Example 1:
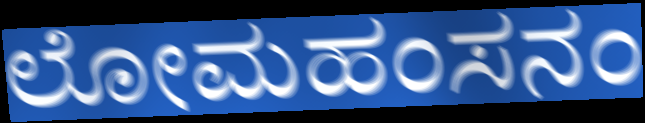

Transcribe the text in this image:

ಲೋಮಹಂಸನಂ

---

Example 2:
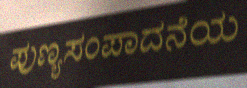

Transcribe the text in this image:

ಪುಣ್ಯಸಂಪಾದನೆಯ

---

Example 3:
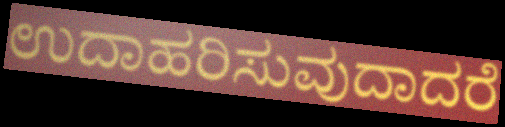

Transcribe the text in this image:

ಉದಾಹರಿಸುವುದಾದರೆ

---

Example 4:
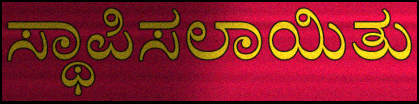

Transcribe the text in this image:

ಸ್ಥಾಪಿಸಲಾಯಿತು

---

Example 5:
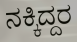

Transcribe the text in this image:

ನಕ್ಕಿದ್ದರ